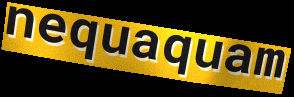
nequaquam